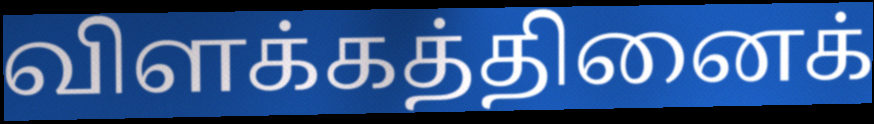
விளக்கத்தினைக்